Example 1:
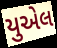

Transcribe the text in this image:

યુએલ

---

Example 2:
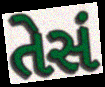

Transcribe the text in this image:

તેસં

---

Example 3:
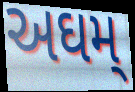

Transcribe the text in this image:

અઘમ્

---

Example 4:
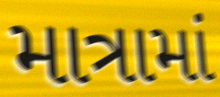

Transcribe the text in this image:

માત્રામાં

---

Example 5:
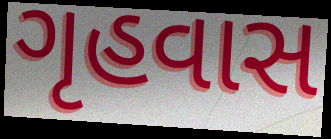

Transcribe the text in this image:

ગૃહવાસ